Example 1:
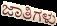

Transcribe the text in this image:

ಜಾತಿಗಳು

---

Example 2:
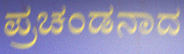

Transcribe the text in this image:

ಪ್ರಚಂಡನಾದ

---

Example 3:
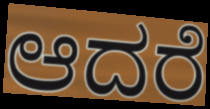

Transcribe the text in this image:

ಆದರೆ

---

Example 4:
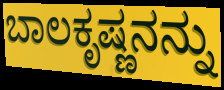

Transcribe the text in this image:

ಬಾಲಕೃಷ್ಣನನ್ನು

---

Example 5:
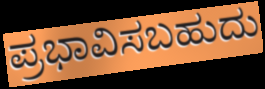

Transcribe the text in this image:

ಪ್ರಭಾವಿಸಬಹುದು